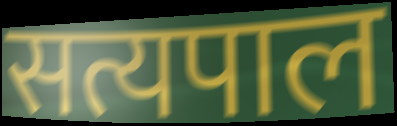
सत्यपाल